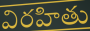
విరహితు